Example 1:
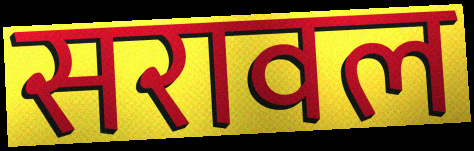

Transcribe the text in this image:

सरावल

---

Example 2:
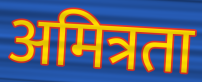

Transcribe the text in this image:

अमित्रता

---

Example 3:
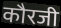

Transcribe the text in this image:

कौरजी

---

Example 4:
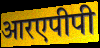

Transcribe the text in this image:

आरएपीपी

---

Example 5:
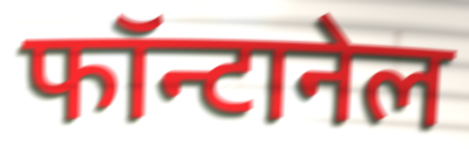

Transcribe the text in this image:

फॉन्टानेल